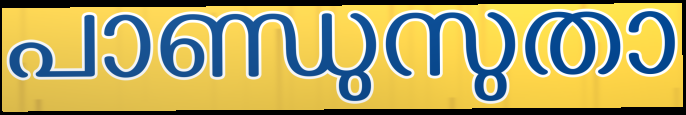
പാണ്ഡുസുതാ